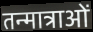
तन्मात्राओं